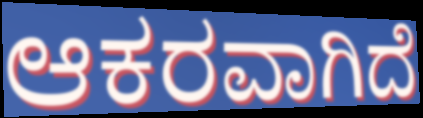
ಆಕರವಾಗಿದೆ